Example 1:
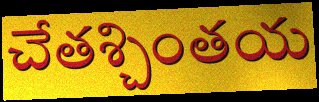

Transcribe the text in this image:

చేతశ్చింతయ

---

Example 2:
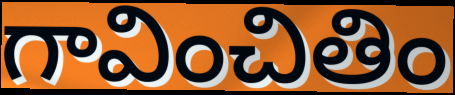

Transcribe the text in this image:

గావించితిం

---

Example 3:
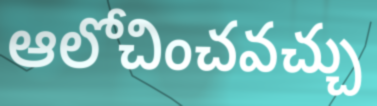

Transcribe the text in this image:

ఆలోచించవచ్చు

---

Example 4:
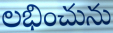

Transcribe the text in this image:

లభించును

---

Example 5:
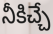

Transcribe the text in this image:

నీకిచ్చే